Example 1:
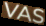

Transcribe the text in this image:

VAS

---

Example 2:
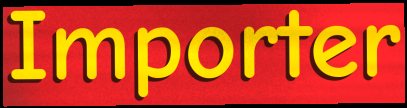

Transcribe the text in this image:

Importer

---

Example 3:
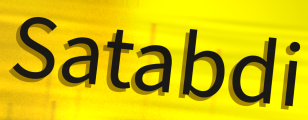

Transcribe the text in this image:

Satabdi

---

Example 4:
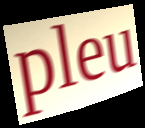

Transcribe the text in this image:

pleu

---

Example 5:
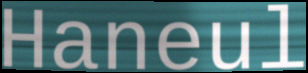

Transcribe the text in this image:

Haneul